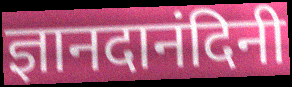
ज्ञानदानंदिनी